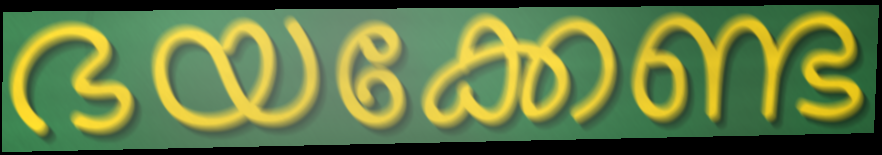
ഭയക്കേണ്ട